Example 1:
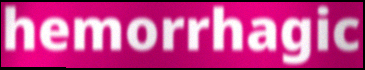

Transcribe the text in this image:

hemorrhagic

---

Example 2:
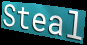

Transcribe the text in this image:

Steal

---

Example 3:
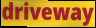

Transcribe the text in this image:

driveway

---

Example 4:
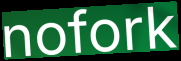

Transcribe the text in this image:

nofork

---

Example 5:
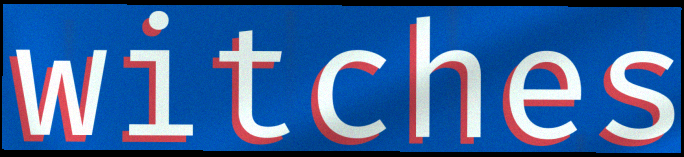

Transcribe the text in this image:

witches